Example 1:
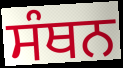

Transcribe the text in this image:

ਸੰਥਨ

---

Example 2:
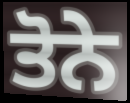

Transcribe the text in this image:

ਤੋਨੇ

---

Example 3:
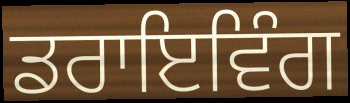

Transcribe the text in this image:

ਡਰਾਇਵਿੰਗ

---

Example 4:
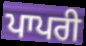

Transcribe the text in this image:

ਪਾਪਰੀ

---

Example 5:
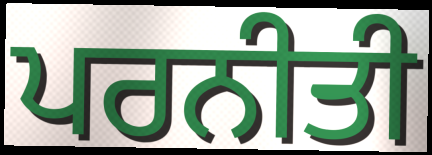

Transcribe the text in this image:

ਪਰਨੀਤੀ